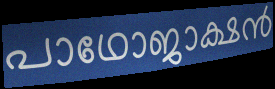
പാഥോജാക്ഷൻ